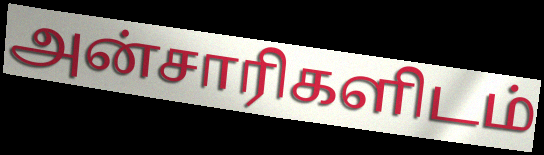
அன்சாரிகளிடம்